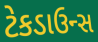
ટેકડાઉન્સ